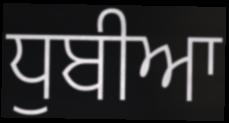
ਧੁਬੀਆ